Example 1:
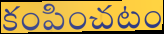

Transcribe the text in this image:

కంపించటం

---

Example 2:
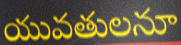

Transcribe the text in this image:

యువతులనూ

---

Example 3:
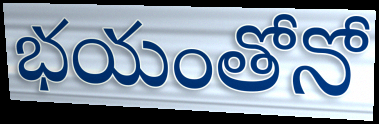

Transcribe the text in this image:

భయంతోనో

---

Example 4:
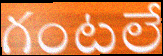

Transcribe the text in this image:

గంటలే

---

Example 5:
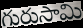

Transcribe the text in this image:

గురుసామి